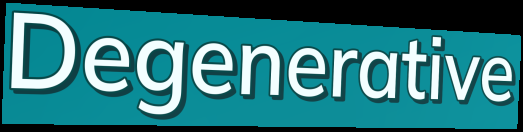
Degenerative